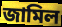
জামিল